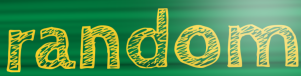
random